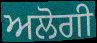
ਅਲੋਗੀ